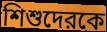
শিশুদেরকে